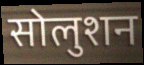
सोलुशन